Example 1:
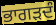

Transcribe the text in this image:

ਭਾਗੜਦੰ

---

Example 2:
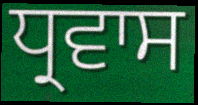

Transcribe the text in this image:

ਧ੍ਰਵਾਸ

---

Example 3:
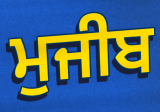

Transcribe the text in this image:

ਮੁਜੀਬ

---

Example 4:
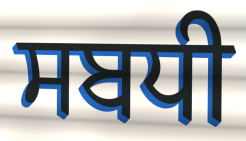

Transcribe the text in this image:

ਸਬਧੀ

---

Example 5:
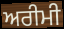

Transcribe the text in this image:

ਅਰੀਮੀ